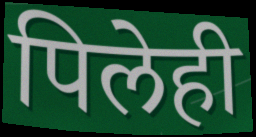
पिलेही